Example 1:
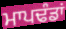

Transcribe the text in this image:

ਮਾਪਢੰਡਾਂ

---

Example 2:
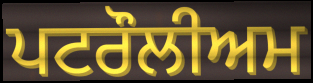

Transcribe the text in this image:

ਪਟਰੌਲੀਅਮ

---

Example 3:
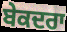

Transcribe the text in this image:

ਬੇਕਦਰਾ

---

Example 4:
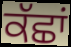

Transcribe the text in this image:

ਕੱਛਾਂ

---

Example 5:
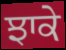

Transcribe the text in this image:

ਝਾਕੇ